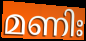
മണിഃ